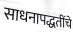
साधनापद्धतींचे